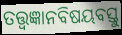
ତତ୍ତ୍ୱଜ୍ଞାନବିଷୟବସ୍ତୁ